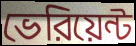
ভেরিয়েন্ট